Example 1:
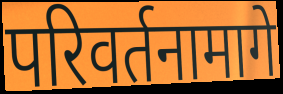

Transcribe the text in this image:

परिवर्तनामागे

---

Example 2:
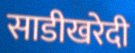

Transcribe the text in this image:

साडीखरेदी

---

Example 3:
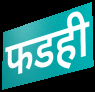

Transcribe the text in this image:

फडही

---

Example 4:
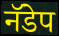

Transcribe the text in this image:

नॅडेप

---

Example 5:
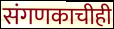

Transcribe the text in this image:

संगणकाचीही